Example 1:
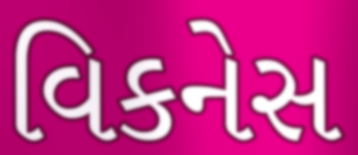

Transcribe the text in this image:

વિકનેસ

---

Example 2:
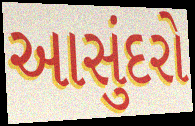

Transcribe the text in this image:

આસુંદરો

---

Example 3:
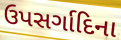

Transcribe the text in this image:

ઉપસર્ગાદિના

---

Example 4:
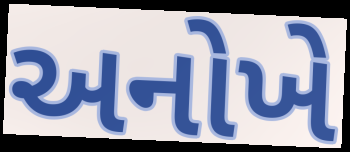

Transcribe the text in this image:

અનોખે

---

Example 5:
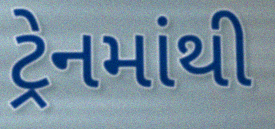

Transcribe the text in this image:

ટ્રેનમાંથી